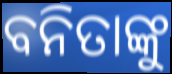
ବନିତାଙ୍କୁ